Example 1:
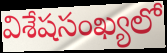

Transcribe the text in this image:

విశేషసంఖ్యలో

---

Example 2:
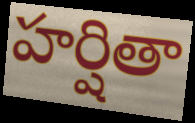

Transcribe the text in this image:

హర్షితా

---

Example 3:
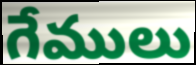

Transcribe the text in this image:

గేములు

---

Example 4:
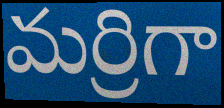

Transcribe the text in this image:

మర్రిగా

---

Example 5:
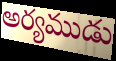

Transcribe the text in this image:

అర్యముడు